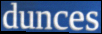
dunces